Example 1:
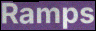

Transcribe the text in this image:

Ramps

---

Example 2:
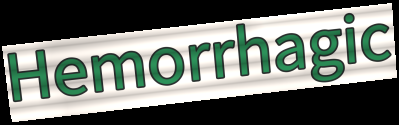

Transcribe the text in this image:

Hemorrhagic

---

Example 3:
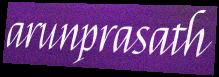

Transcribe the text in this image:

arunprasath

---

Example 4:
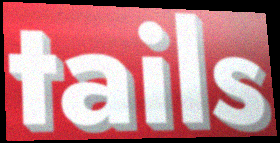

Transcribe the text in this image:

tails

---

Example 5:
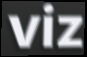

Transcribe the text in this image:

viz